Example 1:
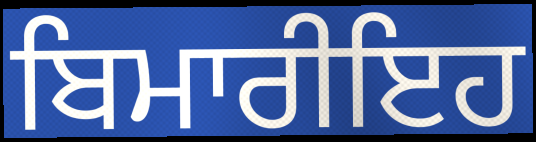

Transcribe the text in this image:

ਬਿਮਾਰੀਇਹ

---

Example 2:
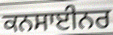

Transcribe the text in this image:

ਕਨਸਾਈਨਰ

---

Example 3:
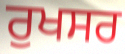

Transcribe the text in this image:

ਰੁਖਸਰ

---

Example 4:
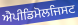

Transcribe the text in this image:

ਐਪੀਡਿਮੋਲਜਿਸਟ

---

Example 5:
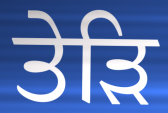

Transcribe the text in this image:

ਤੇੜਿ